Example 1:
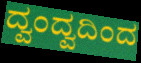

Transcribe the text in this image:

ದ್ವಂದ್ವದಿಂದ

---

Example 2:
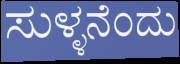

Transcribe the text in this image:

ಸುಳ್ಳನೆಂದು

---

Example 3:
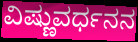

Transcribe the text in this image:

ವಿಷ್ಣುವರ್ಧನನ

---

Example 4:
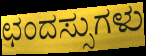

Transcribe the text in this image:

ಛಂದಸ್ಸುಗಳು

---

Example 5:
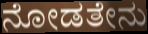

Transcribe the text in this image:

ನೋಡತೇನು